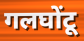
गलघोंटू